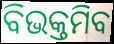
ବିଭକ୍ତମିବ